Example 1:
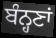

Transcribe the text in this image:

ਬੰਨ੍ਹਣਾਂ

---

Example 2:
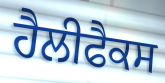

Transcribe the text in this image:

ਹੈਲੀਫੈਕਸ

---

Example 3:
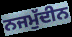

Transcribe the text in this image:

ਨਜਮੁੱਦੀਨ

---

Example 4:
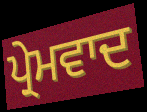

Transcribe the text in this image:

ਪ੍ਰੇਮਵਾਦ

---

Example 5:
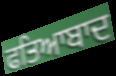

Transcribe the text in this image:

ਫਤਿਆਬਾਦ